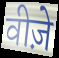
वीज़े